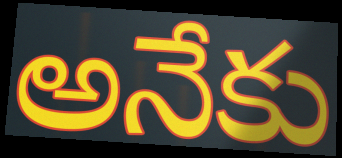
అనేకు